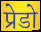
प्रेडो